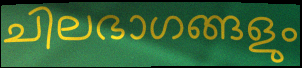
ചിലഭാഗങ്ങളും